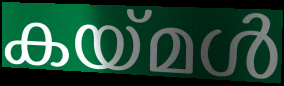
കയ്മൾ